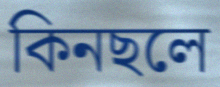
কিনছলে